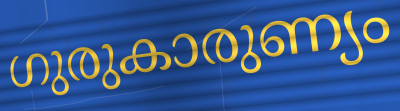
ഗുരുകാരുണ്യം